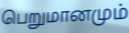
பெறுமானமும்